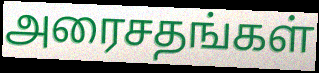
அரைசதங்கள்